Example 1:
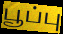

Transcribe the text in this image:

பூப்பு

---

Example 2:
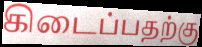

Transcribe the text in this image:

கிடைப்பதற்கு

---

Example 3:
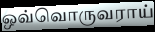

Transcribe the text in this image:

ஒவ்வொருவராய்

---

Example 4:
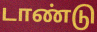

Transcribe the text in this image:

டாண்டு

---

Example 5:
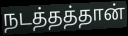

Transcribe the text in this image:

நடத்தத்தான்